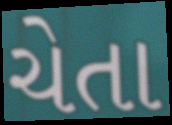
ચેતા